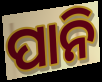
ପାନି